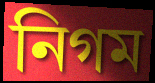
নিগম